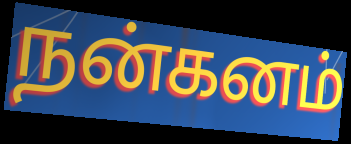
நன்கனம்